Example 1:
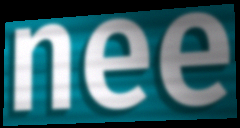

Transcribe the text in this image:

nee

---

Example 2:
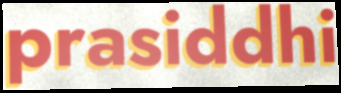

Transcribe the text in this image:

prasiddhi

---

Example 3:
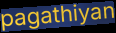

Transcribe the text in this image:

pagathiyan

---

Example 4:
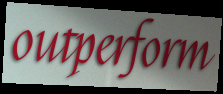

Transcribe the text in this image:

outperform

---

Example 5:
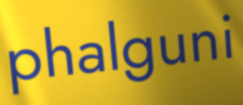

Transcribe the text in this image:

phalguni